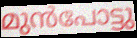
മുൻപോട്ടു